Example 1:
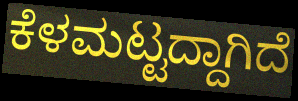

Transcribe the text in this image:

ಕೆಳಮಟ್ಟದ್ದಾಗಿದೆ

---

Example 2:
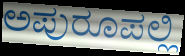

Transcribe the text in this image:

ಅಪುರೂಪಲ್ಲಿ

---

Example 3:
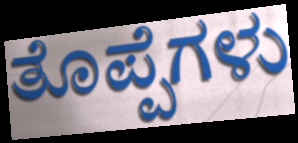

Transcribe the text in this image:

ತೊಪ್ಪೆಗಳು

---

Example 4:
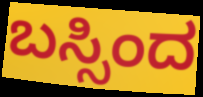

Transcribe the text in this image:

ಬಸ್ಸಿಂದ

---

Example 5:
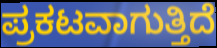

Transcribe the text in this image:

ಪ್ರಕಟವಾಗುತ್ತಿದೆ